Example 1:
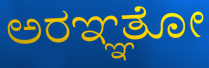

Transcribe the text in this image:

ಅರಞ್ಞತೋ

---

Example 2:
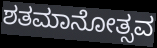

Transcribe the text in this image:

ಶತಮಾನೋತ್ಸವ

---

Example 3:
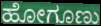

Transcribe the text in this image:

ಹೋಗೂಣು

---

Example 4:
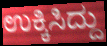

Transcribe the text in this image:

ಉಕ್ಕಿಸಿದ್ದು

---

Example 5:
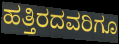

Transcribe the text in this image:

ಹತ್ತಿರದವರಿಗೂ